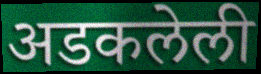
अडकलेली